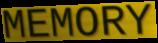
MEMORY